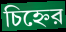
চিহ্নের